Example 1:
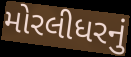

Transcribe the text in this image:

મોરલીધરનું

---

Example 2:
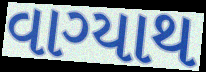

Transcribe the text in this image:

વાગ્યાથ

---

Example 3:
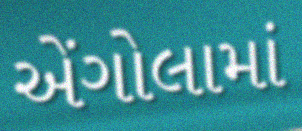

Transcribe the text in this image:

એંગોલામાં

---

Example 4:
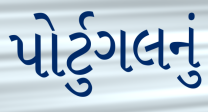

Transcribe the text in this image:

પોર્ટુગલનું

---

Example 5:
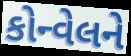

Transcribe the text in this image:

કોન્વેલને